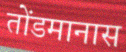
तोंडमानास